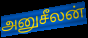
அனுசீலன்